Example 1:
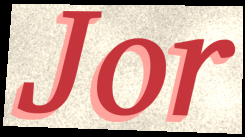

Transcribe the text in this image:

Jor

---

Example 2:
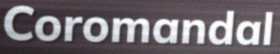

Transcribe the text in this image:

Coromandal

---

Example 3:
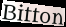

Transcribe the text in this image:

Bitton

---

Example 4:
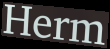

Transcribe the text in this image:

Herm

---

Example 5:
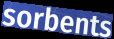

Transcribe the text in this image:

sorbents